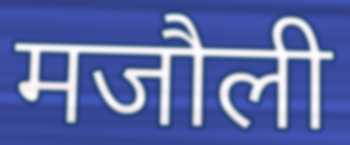
मजौली